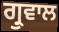
ਗ੍ਰੁਵਾਲ